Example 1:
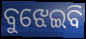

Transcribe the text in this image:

ବୁଝେଇବି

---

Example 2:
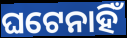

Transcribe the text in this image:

ଘଟେନାହିଁ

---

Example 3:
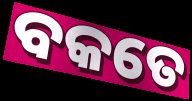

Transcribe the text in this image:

ବକତେ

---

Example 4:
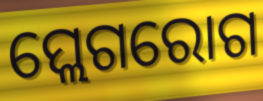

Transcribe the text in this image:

ପ୍ଲେଗରୋଗ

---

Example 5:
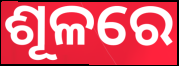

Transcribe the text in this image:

ଶୂଳରେ